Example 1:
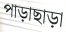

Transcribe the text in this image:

পাড়াছাড়া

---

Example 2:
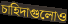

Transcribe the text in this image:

চাহিদাগুলোও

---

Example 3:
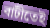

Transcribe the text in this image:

বাটীতেই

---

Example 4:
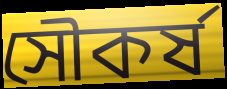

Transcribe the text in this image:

সৌকর্ষ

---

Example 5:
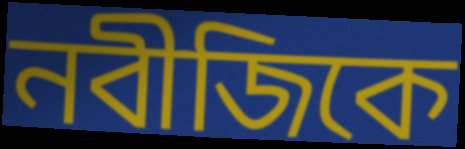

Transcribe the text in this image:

নবীজিকে